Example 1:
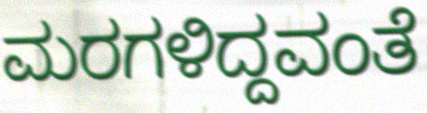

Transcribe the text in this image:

ಮರಗಳಿದ್ದವಂತೆ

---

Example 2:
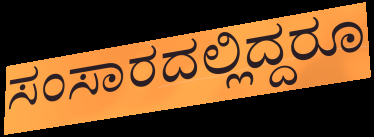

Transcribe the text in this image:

ಸಂಸಾರದಲ್ಲಿದ್ದರೂ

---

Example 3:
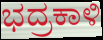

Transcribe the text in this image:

ಭದ್ರಕಾಳಿ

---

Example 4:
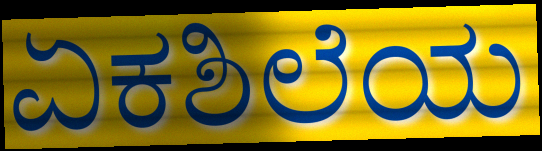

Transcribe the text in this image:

ಏಕಶಿಲೆಯ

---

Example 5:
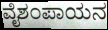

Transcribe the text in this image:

ವೈಶಂಪಾಯನ